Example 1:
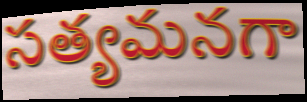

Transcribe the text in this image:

సత్యమనగా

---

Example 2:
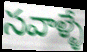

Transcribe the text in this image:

సవాళ్ళే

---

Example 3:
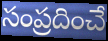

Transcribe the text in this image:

సంప్రదించే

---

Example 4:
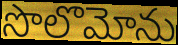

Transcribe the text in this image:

సొలొమోను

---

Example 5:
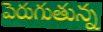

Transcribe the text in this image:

పెరుగుతున్న